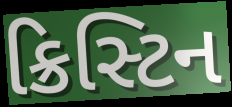
ક્રિસ્ટિન